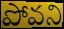
పోవని